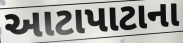
આટાપાટાના